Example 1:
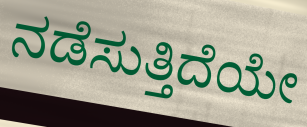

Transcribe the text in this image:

ನಡೆಸುತ್ತಿದೆಯೇ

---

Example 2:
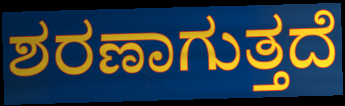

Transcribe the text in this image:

ಶರಣಾಗುತ್ತದೆ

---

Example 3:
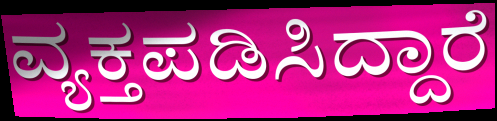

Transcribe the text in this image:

ವ್ಯಕ್ತಪಡಿಸಿದ್ದಾರೆ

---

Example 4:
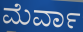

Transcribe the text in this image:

ಮೆರ್ವಾ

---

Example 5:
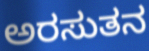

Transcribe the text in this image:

ಅರಸುತನ